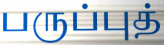
பருப்புத்